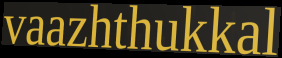
vaazhthukkal